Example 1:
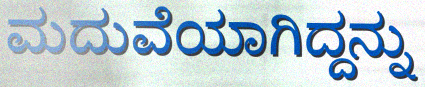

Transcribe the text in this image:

ಮದುವೆಯಾಗಿದ್ದನ್ನು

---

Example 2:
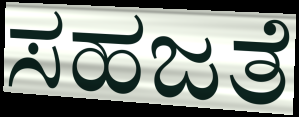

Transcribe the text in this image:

ಸಹಜತೆ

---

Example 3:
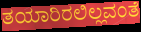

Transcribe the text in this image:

ತಯಾರಿರಲಿಲ್ಲವಂತೆ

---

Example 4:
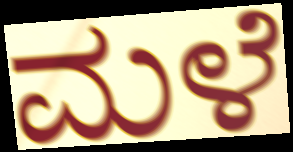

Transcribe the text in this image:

ಮಳೆ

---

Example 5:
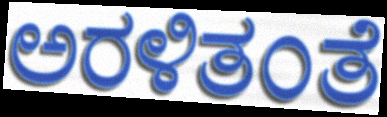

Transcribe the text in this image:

ಅರಳಿತಂತೆ